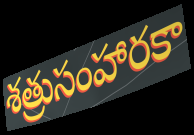
శత్రుసంహారకా